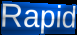
Rapid